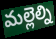
మల్లెల్ని